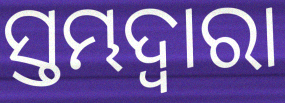
ସ୍ତମ୍ଭଦ୍ୱାରା